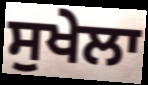
ਸੁਖੇਲਾ